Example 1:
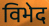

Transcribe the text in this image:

विभेद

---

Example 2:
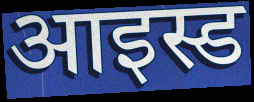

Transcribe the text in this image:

आइस्ड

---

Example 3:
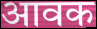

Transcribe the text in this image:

आवक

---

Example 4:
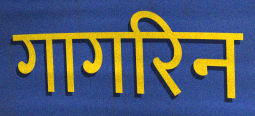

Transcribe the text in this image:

गागरिन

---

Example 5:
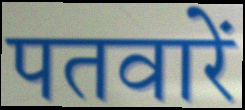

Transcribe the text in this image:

पतवारें